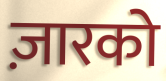
ज़ारको